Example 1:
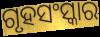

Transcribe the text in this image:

ଗୃହସଂସ୍କାର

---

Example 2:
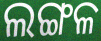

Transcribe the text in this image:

ଲଙ୍ଗଳ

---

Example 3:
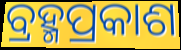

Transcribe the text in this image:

ବ୍ରହ୍ମପ୍ରକାଶ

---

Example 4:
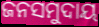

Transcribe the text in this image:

ଜନସମୁଦାୟ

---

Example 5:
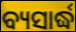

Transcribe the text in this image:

ବ୍ୟସାର୍ଦ୍ଧ